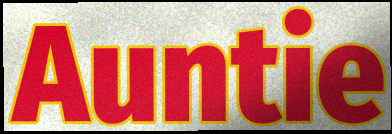
Auntie